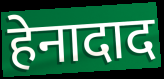
हेनादाद